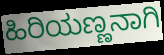
ಹಿರಿಯಣ್ಣನಾಗಿ